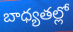
బాధ్యతల్లో